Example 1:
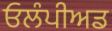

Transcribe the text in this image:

ਓਲੰਪੀਅਡ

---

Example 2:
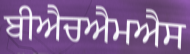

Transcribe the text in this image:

ਬੀਐਚਐਮਐਸ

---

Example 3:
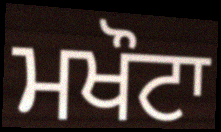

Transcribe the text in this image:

ਮਖੌਟਾ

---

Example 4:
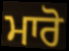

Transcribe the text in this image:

ਮਾਰੋ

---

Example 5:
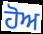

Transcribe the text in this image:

ਹੋਅ